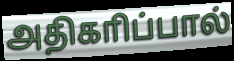
அதிகரிப்பால்